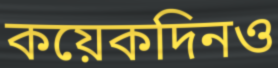
কয়েকদিনও